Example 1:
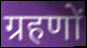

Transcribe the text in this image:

ग्रहणों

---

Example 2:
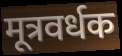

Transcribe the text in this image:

मूत्रवर्धक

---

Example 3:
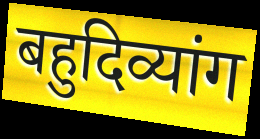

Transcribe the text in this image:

बहुदिव्यांग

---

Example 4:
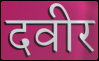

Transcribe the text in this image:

दवीर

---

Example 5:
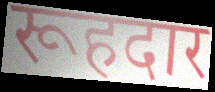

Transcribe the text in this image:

रूहदार